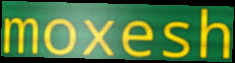
moxesh